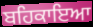
ਬਹਿਕਾਇਆ